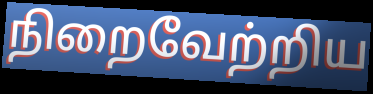
நிறைவேற்றிய